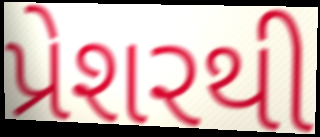
પ્રેશરથી